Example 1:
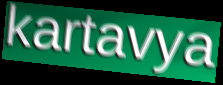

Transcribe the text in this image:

kartavya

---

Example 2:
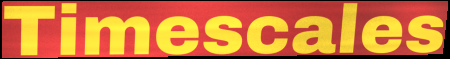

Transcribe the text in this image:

Timescales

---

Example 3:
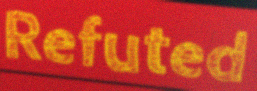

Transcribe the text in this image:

Refuted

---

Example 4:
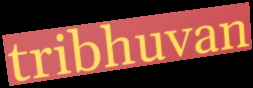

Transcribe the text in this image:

tribhuvan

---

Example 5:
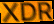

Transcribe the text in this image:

XDR